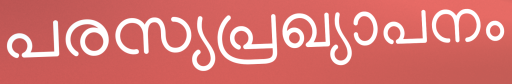
പരസ്യപ്രഖ്യാപനം